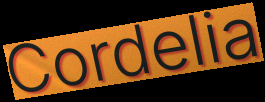
Cordelia